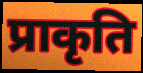
प्राकृति